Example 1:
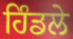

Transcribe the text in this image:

ਹਿੰਡਲੇ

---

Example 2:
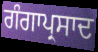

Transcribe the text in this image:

ਗੰਗਾਪ੍ਰਸਾਦ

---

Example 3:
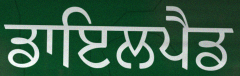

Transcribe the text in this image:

ਡਾਇਲਪੈਡ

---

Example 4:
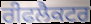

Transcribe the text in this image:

ਰੀਫਲੈਕਟਰ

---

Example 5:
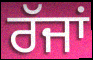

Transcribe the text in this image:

ਰੱਜਾਂ